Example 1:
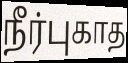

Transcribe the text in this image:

நீர்புகாத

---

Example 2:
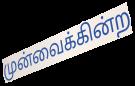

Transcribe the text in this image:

முன்வைக்கின்ற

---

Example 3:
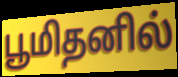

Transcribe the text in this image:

பூமிதனில்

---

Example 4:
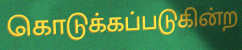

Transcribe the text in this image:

கொடுக்கப்படுகின்ற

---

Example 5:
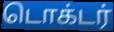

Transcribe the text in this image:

டொக்டர்